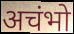
अचंभो